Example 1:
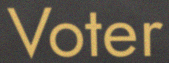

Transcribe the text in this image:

Voter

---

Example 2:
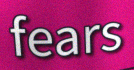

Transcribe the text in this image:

fears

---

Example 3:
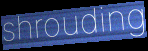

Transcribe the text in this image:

shrouding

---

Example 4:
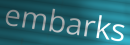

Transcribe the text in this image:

embarks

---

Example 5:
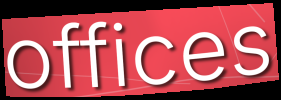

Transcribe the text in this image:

offices